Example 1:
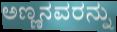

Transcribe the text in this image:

ಅಣ್ಣನವರನ್ನು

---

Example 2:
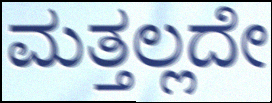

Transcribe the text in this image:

ಮತ್ತಲ್ಲದೇ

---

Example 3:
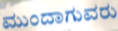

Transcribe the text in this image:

ಮುಂದಾಗುವರು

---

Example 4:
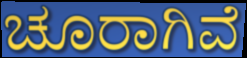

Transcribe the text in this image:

ಚೂರಾಗಿವೆ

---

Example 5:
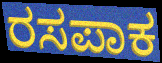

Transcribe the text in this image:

ರಸಪಾಕ